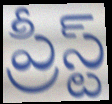
ప్రీస్ట్